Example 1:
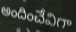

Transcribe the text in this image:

అందించేవిగా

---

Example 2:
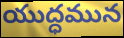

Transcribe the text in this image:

యుద్ధమున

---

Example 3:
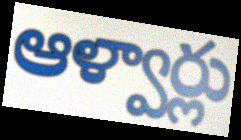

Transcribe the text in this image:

ఆళ్వార్లు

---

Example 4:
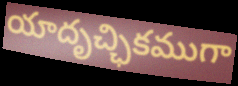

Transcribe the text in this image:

యాదృచ్ఛికముగా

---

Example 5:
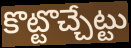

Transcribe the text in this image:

కొట్టొచ్చేట్టు